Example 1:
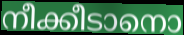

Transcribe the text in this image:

നീക്കീടാനൊ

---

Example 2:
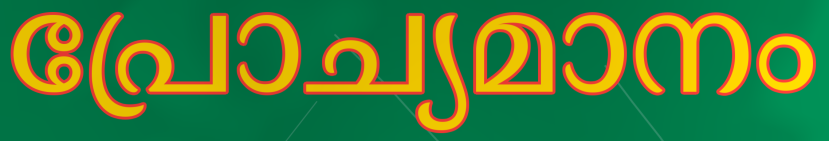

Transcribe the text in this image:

പ്രോച്യമാനം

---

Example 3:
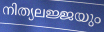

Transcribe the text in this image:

നിത്യലജ്ജയും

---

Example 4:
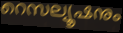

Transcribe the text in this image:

റെസല്യൂഷനും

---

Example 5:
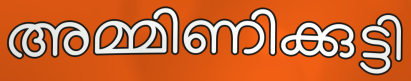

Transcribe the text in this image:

അമ്മിണിക്കുട്ടി